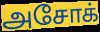
அசோக்